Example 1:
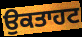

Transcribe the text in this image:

ਉਕਤਾਹਟ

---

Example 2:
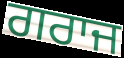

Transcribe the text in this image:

ਗਰਾਜ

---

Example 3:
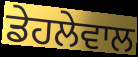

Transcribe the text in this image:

ਡੇਹਲੇਵਾਲ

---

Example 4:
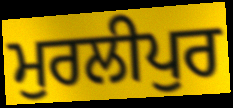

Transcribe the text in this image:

ਮੁਰਲੀਪੁਰ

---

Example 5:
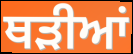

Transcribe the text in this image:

ਥੜੀਆਂ